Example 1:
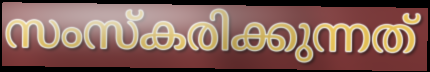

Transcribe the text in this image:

സംസ്കരിക്കുന്നത്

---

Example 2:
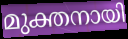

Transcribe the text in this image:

മുക്തനായി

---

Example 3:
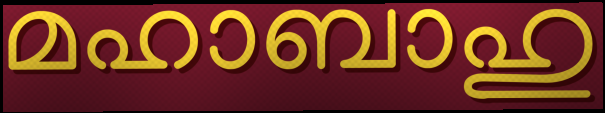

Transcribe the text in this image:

മഹാബാഹു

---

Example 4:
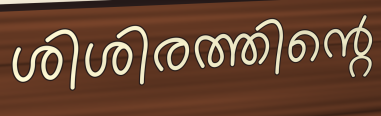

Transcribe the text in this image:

ശിശിരത്തിന്റെ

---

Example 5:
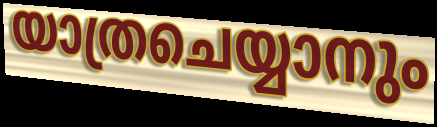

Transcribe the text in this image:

യാത്രചെയ്യാനും